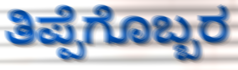
ತಿಪ್ಪೆಗೊಬ್ಬರ